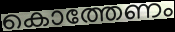
കൊത്തേണം